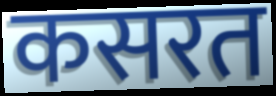
कसरत